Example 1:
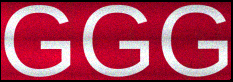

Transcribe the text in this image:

GGG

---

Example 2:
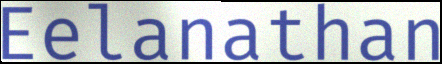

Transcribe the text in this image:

Eelanathan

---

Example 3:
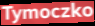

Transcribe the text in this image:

Tymoczko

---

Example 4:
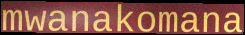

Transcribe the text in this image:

mwanakomana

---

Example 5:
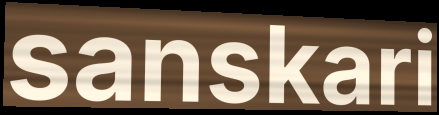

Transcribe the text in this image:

sanskari